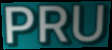
PRU